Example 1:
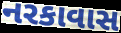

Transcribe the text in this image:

નરકાવાસ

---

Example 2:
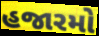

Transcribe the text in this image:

હજારમો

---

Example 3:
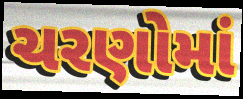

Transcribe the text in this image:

ચરણોમાં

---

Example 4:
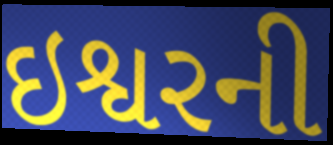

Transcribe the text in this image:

ઇશ્વરની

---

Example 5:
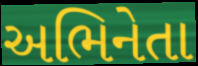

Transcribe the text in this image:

અભિનેતા